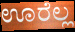
ಊರೆಲ್ಲ